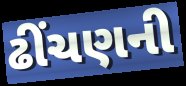
ઢીંચણની